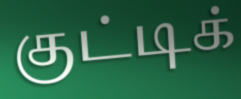
குட்டிக்